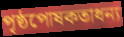
পৃষ্ঠপোষকতাধন্য